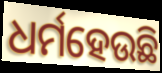
ଧର୍ମହେଉଛି